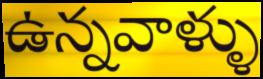
ఉన్నవాళ్ళు